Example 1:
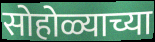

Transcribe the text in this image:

सोहोळ्याच्या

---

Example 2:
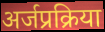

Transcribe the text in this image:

अर्जप्रक्रिया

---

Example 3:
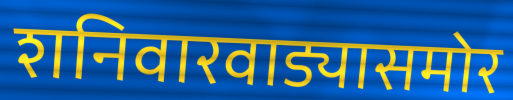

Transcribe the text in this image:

शनिवारवाड्यासमोर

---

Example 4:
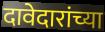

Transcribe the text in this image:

दावेदारांच्या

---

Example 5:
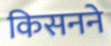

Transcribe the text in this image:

किसनने